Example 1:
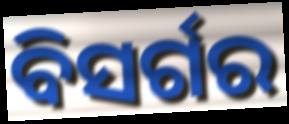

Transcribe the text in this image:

ବିସର୍ଗର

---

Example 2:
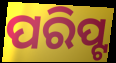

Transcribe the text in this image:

ପରିପ୍ଟ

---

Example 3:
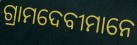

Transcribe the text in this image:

ଗ୍ରାମଦେବୀମାନେ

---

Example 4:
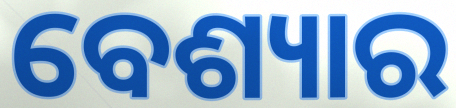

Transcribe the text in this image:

ବେଶ୍ୟାର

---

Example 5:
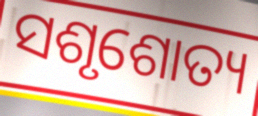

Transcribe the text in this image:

ସଶୃଶୋତ୍ୟ